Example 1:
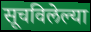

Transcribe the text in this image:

सूचविलेल्या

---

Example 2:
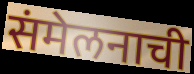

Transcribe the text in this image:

संमेलनाची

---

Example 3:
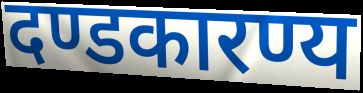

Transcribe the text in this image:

दण्डकारण्य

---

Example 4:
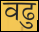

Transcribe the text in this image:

वढु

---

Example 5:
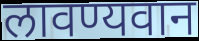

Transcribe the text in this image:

लावण्यवान